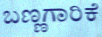
ಬಣ್ಣಗಾರಿಕೆ